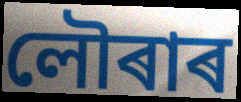
লৌৰাৰ